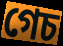
গেচ